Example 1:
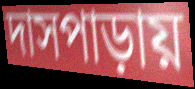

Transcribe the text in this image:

দাসপাড়ায়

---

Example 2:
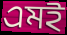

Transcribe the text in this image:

এমই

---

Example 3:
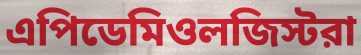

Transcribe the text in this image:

এপিডেমিওলজিস্টরা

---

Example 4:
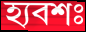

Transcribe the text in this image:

হ্যবশঃ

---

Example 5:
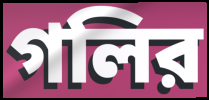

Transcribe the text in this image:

গলির